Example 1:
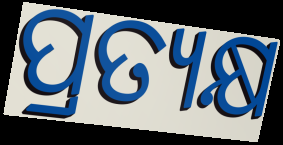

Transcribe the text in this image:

ପ୍ରତ୍ୟକ୍ଷ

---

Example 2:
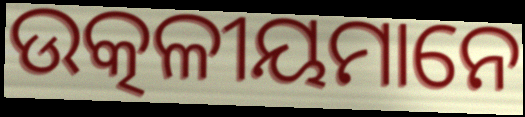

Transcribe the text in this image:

ଉତ୍କଳୀୟମାନେ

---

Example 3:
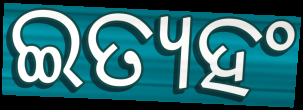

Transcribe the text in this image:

ଇତ୍ୟହଂ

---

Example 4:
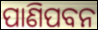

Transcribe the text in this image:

ପାଣିପବନ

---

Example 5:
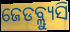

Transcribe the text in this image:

ଜେଡବ୍ଲ୍ୟୁସି